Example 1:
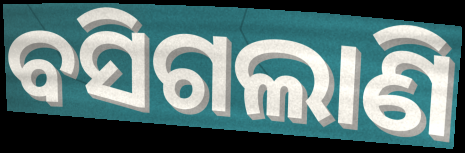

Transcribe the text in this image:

ବସିଗଲାଣି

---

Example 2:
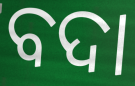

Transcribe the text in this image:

ବଦା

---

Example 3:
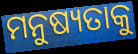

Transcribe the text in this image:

ମନୁଷ୍ୟତାକୁ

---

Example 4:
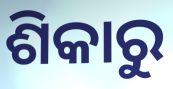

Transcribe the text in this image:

ଶିକାରୁ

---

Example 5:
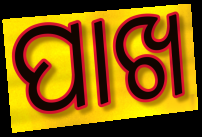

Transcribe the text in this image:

ପାଖ